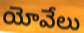
యోవేలు